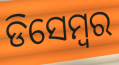
ଡିସେମ୍ୱର